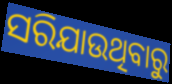
ସରିଯାଉଥିବାରୁ